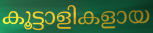
കൂട്ടാളികളായ